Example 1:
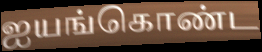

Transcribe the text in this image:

ஐயங்கொண்ட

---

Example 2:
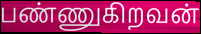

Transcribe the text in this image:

பண்ணுகிறவன்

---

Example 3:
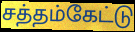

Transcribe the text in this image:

சத்தம்கேட்டு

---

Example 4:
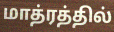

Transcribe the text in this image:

மாத்ரத்தில்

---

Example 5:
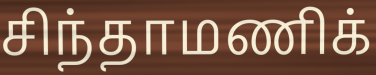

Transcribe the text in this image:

சிந்தாமணிக்